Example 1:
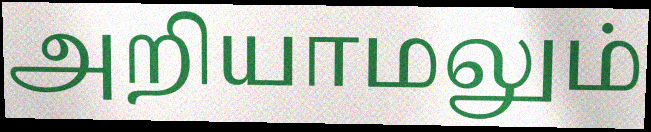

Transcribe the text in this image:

அறியாமலும்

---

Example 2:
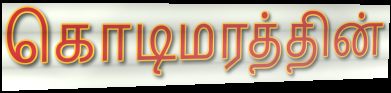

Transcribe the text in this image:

கொடிமரத்தின்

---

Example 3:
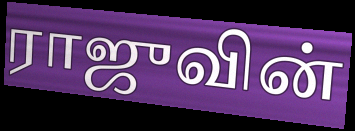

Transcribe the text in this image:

ராஜுவின்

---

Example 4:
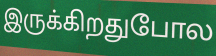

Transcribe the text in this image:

இருக்கிறதுபோல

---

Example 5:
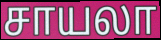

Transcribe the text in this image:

சாயலா